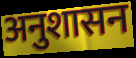
अनुशासन